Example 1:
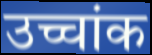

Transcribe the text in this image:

उच्चांक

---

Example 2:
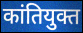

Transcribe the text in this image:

कांतियुक्त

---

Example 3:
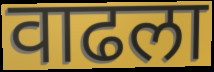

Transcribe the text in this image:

वाढला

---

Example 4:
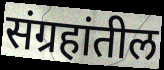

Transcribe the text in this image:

संग्रहांतील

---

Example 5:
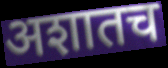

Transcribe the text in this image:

अशातच